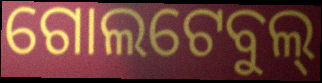
ଗୋଲଟେବୁଲ୍